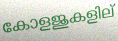
കോളജുകളില്